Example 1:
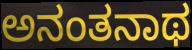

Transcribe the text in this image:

ಅನಂತನಾಥ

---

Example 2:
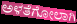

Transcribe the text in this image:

ಅಳತೆಗೋಲಾಗಿ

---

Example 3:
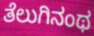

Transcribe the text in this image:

ತೆಲುಗಿನಂಥ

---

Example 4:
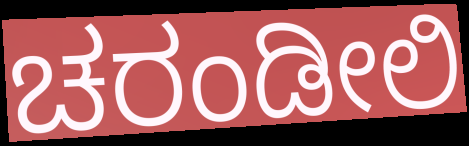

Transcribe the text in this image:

ಚರಂಡೀಲಿ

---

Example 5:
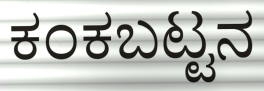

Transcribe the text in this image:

ಕಂಕಬಟ್ಟನ